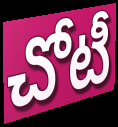
చోటీ